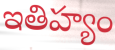
ఇతిహ్యం